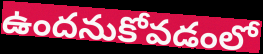
ఉందనుకోవడంలో